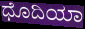
ಧೊದಿಯಾ